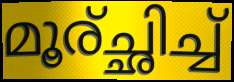
മൂര്ച്ഛിച്ച്